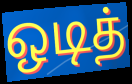
ஒடித்